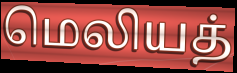
மெலியத்